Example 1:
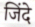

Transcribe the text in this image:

जिंदे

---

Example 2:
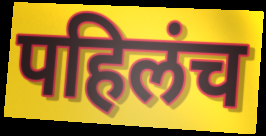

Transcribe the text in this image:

पहिलंच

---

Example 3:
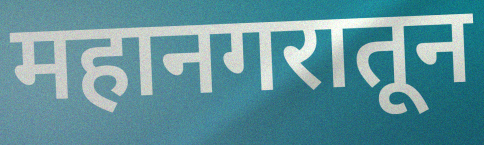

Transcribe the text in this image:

महानगरातून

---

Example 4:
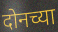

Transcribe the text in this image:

दोनच्या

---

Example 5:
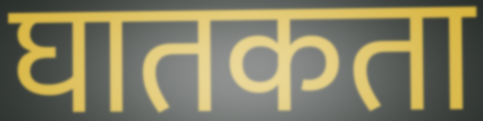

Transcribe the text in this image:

घातकता